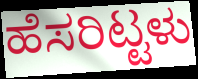
ಹೆಸರಿಟ್ಟಳು